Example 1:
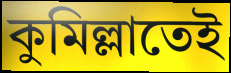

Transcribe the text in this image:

কুমিল্লাতেই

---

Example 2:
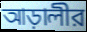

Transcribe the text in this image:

আড়ালীর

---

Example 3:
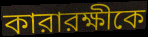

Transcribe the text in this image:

কারারক্ষীকে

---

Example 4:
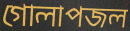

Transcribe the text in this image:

গোলাপজল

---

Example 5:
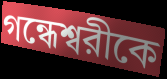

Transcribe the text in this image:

গন্ধেশ্বরীকে